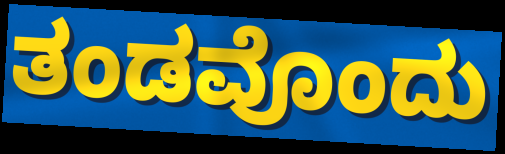
ತಂಡವೊಂದು